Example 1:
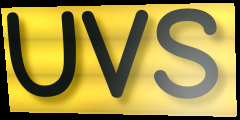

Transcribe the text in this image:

UVS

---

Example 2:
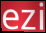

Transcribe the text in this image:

ezi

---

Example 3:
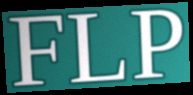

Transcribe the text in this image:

FLP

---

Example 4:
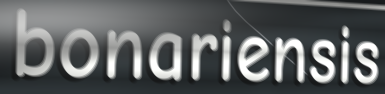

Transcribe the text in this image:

bonariensis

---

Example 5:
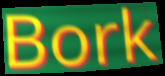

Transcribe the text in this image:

Bork